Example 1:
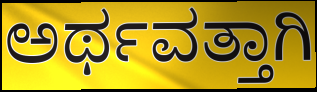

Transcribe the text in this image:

ಅರ್ಥವತ್ತಾಗಿ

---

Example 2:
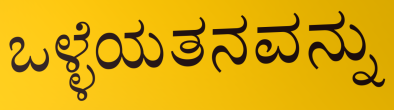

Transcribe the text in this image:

ಒಳ್ಳೆಯತನವನ್ನು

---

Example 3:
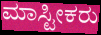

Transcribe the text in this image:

ಮಾಸ್ಟೀಕರು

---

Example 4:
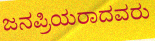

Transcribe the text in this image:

ಜನಪ್ರಿಯರಾದವರು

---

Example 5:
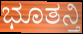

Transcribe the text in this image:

ಭೂತನ್ತಿ